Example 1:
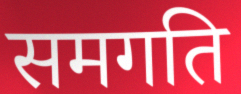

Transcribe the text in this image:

समगति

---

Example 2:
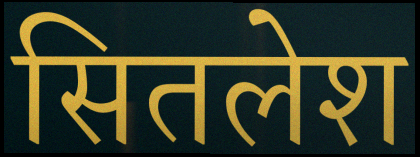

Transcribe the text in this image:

सितलेश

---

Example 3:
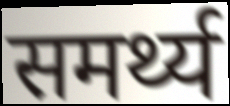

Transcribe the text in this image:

समर्थ्य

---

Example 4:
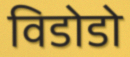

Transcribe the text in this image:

विडोडो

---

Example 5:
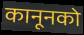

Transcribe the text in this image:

कानूनको